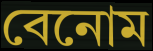
বেনোম